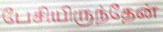
பேசியிருந்தேன்